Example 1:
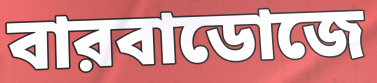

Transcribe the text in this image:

বারবাডোজে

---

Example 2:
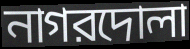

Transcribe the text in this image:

নাগরদোলা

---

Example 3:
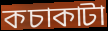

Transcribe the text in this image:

কচাকাটা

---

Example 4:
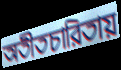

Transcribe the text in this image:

অতীতচারিতায়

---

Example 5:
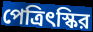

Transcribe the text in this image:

পেত্রিৎস্কির